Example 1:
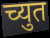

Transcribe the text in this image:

च्‍युत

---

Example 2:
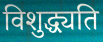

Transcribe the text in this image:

विशुद्ध्यति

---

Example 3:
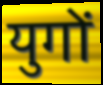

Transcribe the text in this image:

युगों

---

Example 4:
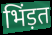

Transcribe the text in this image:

भिंड़त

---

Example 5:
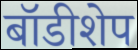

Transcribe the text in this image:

बॉडीशेप